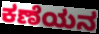
ಕಣೆಯನ